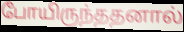
போயிருந்ததனால்